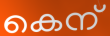
കെന്